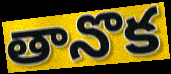
తానొక